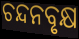
ଚନ୍ଦନବୃକ୍ଷ